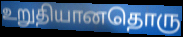
உறுதியானதொரு